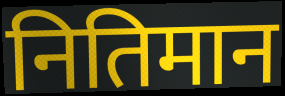
नितिमान